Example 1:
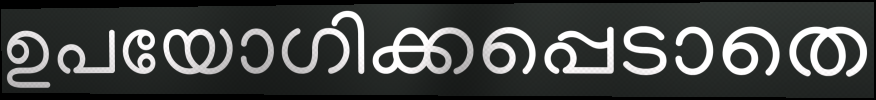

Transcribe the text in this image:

ഉപയോഗിക്കപ്പെടാതെ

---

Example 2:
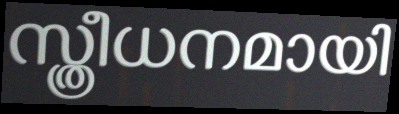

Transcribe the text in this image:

സ്ത്രീധനമായി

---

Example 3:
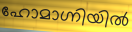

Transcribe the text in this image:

ഹോമാഗ്നിയിൽ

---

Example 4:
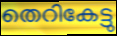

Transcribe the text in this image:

തെറികേട്ടു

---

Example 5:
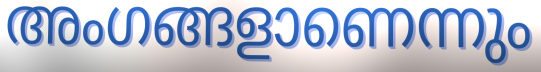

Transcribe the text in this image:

അംഗങ്ങളാണെന്നും